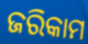
ଜରିକାମ